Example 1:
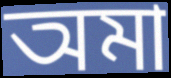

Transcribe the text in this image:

অমা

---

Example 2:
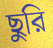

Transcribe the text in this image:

ছুরি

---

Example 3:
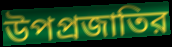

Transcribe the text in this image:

উপপ্রজাতির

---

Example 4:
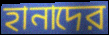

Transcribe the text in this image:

হানাদের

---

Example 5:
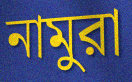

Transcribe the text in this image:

নামুরা